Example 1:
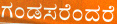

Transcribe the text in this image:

ಗಂಡಸರೆಂದರೆ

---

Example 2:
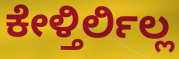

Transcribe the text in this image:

ಕೇಳ್ತಿರ್ಲಿಲ್ಲ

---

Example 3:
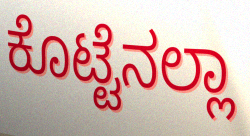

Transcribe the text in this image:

ಕೊಟ್ಟೆನಲ್ಲಾ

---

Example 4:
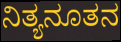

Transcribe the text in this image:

ನಿತ್ಯನೂತನ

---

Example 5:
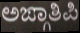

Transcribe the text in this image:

ಅಙ್ಗಾತಿಪಿ